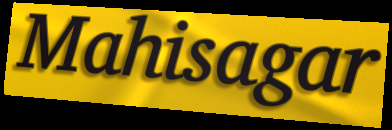
Mahisagar